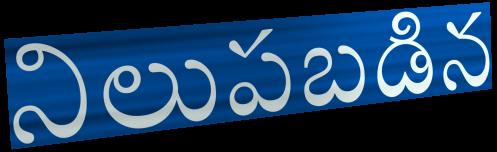
నిలుపబడిన